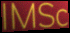
IMSc